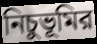
নিচুভূমির